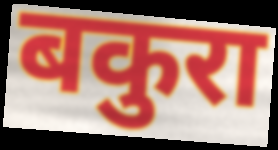
बकुरा